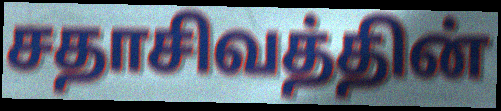
சதாசிவத்தின்